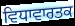
ਵਿਧਾਵਾਰਤਕ